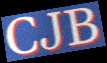
CJB